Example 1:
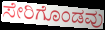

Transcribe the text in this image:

ಸೇರಿಗೊಂಡವು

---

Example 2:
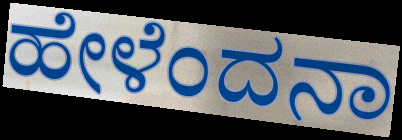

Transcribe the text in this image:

ಹೇಳೆಂದನಾ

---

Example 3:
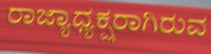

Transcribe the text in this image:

ರಾಜ್ಯಾಧ್ಯಕ್ಷರಾಗಿರುವ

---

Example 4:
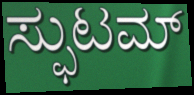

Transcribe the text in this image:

ಸ್ಫುಟಮ್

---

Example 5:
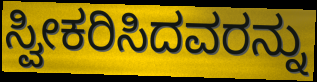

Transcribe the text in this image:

ಸ್ವೀಕರಿಸಿದವರನ್ನು